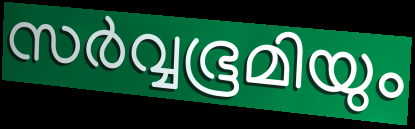
സർവ്വഭൂമിയും